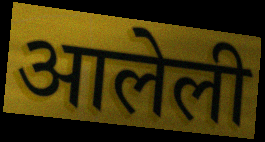
आलेली